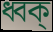
ধ্বক্